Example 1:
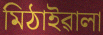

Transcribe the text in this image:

মিঠাইৱালা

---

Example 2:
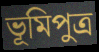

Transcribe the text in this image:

ভূমিপুত্ৰ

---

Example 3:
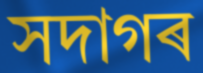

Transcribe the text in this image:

সদাগৰ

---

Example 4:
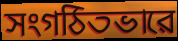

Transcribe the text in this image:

সংগঠিতভাৱে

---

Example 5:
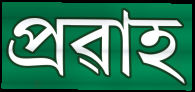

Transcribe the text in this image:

প্ৰৱাহ